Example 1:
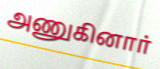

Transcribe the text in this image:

அணுகினார்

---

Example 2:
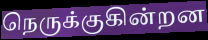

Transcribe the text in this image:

நெருக்குகின்றன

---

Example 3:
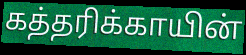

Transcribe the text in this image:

கத்தரிக்காயின்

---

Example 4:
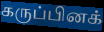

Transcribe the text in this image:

கருப்பினக்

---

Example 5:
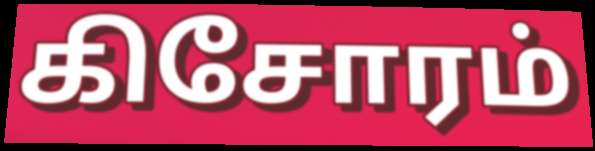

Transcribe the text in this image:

கிசோரம்